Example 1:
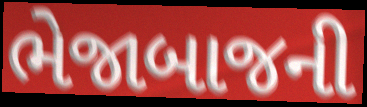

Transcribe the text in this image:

ભેજાબાજની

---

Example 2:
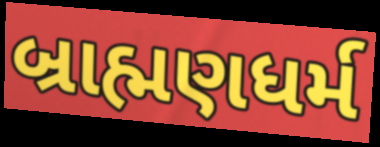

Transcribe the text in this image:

બ્રાહ્મણધર્મ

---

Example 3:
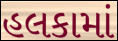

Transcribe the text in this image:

હલકામાં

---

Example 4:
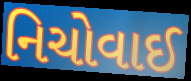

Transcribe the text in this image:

નિચોવાઈ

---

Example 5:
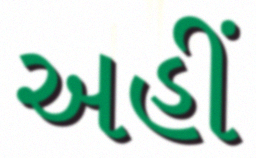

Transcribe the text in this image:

અહીં